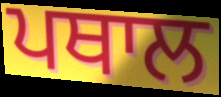
ਪਥਾਲ